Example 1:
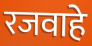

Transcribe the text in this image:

रजवाहे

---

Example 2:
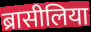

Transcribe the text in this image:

ब्रासीलिया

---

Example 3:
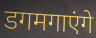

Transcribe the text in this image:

डगमगाएंगे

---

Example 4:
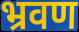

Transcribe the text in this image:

भ्रवण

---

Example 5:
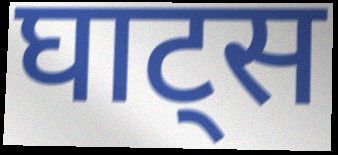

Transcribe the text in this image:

घाट्स